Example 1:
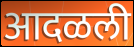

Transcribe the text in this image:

आदळली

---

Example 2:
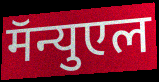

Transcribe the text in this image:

मॅन्युएल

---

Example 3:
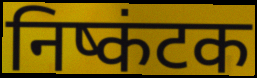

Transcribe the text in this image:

निष्कंटक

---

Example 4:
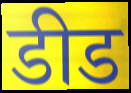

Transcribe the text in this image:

डीड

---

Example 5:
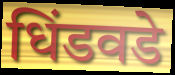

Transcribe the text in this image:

धिंडवडे